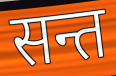
सन्त